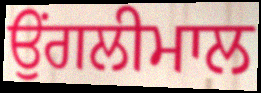
ਉਂਗਲੀਮਾਲ